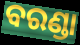
ବରଣ୍ଡା